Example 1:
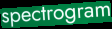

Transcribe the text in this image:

spectrogram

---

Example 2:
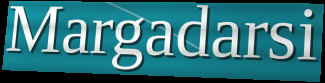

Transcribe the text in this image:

Margadarsi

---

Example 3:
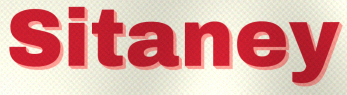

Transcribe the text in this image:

Sitaney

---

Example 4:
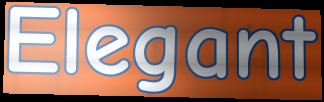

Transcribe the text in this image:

Elegant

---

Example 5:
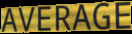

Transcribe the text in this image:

AVERAGE